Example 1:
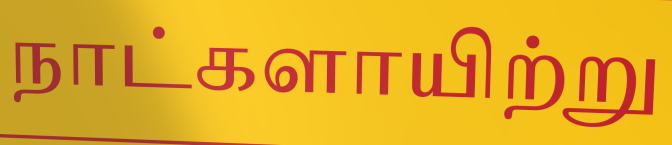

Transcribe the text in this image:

நாட்களாயிற்று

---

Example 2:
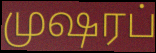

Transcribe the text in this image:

முஷரப்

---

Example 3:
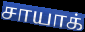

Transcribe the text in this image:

சாயாக்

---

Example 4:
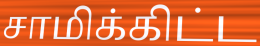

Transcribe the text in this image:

சாமிக்கிட்ட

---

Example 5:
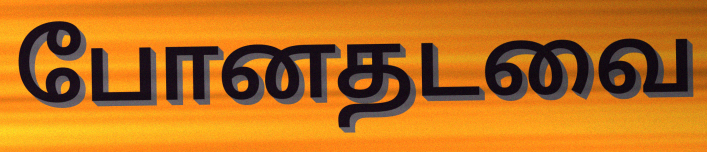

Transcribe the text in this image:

போனதடவை